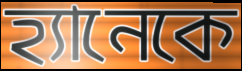
হ্যানেকে